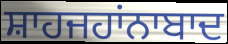
ਸ਼ਾਹਜਹਾਂਨਾਬਾਦ